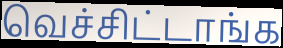
வெச்சிட்டாங்க